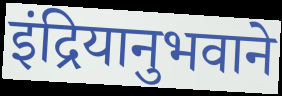
इंद्रियानुभवाने